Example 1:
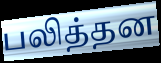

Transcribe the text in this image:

பலித்தன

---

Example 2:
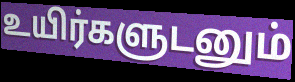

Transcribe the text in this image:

உயிர்களுடனும்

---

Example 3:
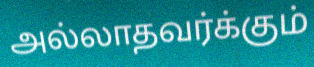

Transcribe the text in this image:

அல்லாதவர்க்கும்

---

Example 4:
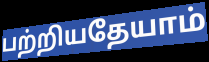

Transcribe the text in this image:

பற்றியதேயாம்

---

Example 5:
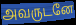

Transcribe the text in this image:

அவருடனே